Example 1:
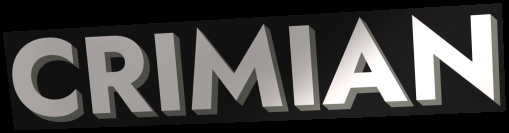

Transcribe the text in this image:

CRIMIAN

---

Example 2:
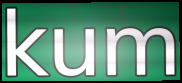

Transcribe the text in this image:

kum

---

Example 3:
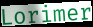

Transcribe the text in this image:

Lorimer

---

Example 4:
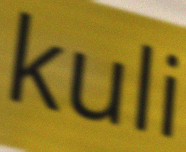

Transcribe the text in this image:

kuli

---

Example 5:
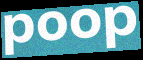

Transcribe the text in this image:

poop